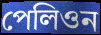
পেলিওন